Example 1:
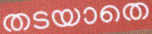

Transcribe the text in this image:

തടയാതെ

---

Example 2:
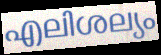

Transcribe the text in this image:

എലിശല്യം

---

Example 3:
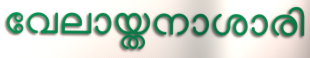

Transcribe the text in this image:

വേലായ്തനാശാരി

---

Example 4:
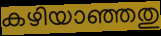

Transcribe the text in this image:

കഴിയാഞ്ഞതു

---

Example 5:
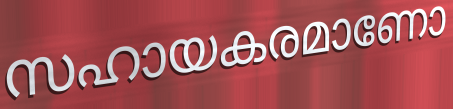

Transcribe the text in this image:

സഹായകരമാണോ